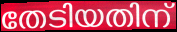
തേടിയതിന്